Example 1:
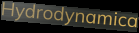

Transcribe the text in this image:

Hydrodynamica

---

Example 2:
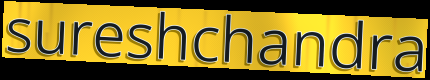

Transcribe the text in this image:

sureshchandra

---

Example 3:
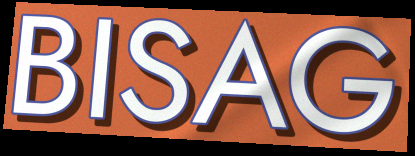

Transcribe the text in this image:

BISAG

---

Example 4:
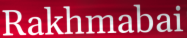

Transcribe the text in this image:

Rakhmabai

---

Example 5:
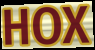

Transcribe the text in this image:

HOX